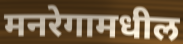
मनरेगामधील